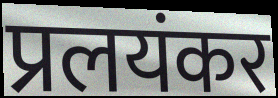
प्रलयंकर